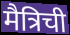
मैत्रिची